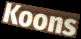
Koons